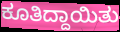
ಕೂತಿದ್ದಾಯಿತು